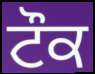
ਟੌਕ